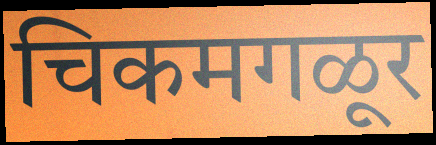
चिकमगळूर